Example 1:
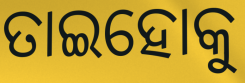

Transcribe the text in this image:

ତାଇହୋକୁ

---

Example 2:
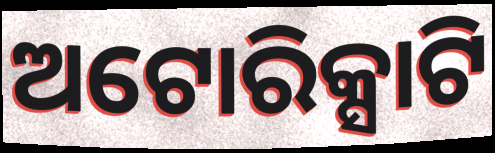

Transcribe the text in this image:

ଅଟୋରିକ୍ସାଟି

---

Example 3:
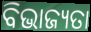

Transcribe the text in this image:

ବିଭାଜ୍ୟତା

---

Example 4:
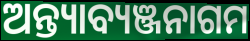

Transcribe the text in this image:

ଅନ୍ତ୍ୟାବ୍ୟଞ୍ଜନାଗମ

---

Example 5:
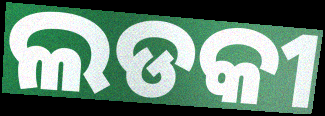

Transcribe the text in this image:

ଲଡକୀ